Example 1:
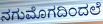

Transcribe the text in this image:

ನಗುಮೊಗದಿಂದಲೆ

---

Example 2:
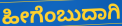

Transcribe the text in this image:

ಹೀಗೆಂಬುದಾಗಿ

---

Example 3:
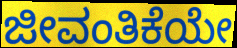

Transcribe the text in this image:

ಜೀವಂತಿಕೆಯೇ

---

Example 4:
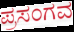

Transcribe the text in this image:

ಪ್ರಸಂಗವ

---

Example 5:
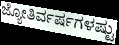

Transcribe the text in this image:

ಜ್ಯೋತಿರ್ವರ್ಷಗಳಷ್ಟು